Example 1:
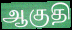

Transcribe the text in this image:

ஆகுதி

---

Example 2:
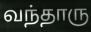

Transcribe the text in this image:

வந்தாரு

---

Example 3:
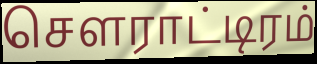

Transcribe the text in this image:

சௌராட்டிரம்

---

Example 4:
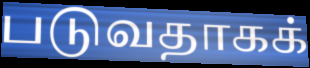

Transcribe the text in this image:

படுவதாகக்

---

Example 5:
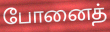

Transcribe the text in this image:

போனைத்